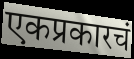
एकप्रकारचं